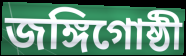
জঙ্গিগোষ্ঠী